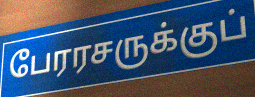
பேரரசருக்குப்